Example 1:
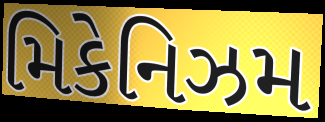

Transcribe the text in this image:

મિકેનિઝમ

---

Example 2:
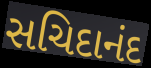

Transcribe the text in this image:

સચિદાનંદ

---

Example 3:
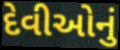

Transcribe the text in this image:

દેવીઓનું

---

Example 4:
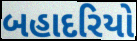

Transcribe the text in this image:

બહાદરિયો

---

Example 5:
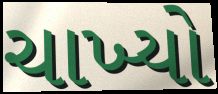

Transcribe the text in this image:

ચાખ્યો